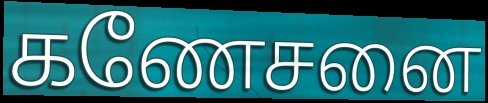
கணேசனை